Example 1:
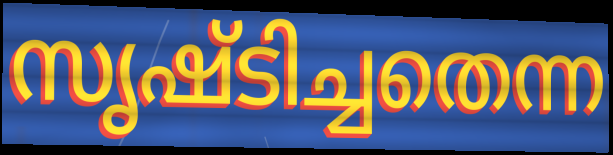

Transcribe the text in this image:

സൃഷ്ടിച്ചതെന്ന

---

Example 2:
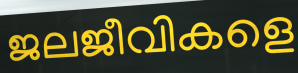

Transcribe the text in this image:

ജലജീവികളെ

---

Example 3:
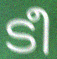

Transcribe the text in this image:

ടീ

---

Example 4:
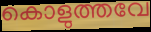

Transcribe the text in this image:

കൊളുത്തവേ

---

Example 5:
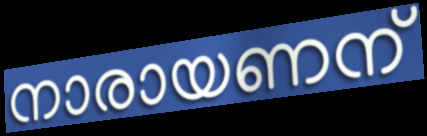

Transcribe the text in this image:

നാരായണന്